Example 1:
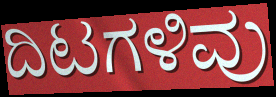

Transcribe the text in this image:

ದಿಟಗಳಿವು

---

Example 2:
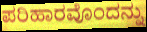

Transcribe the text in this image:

ಪರಿಹಾರವೊಂದನ್ನು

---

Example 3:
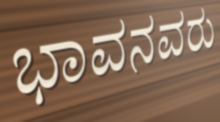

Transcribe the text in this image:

ಭಾವನವರು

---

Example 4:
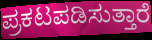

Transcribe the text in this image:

ಪ್ರಕಟಪಡಿಸುತ್ತಾರೆ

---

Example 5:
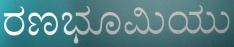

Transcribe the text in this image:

ರಣಭೂಮಿಯು